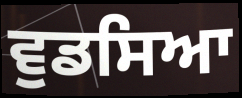
ਵੁਡਸਿਆ